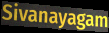
Sivanayagam